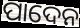
ପାଦେନ